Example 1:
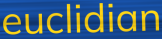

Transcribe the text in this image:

euclidian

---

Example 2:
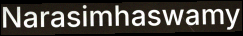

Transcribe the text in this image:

Narasimhaswamy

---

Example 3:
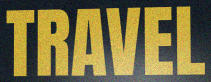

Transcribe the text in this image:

TRAVEL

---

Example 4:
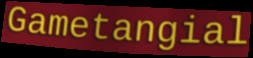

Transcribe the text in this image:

Gametangial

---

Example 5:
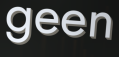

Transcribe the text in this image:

geen